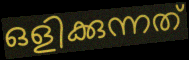
ഒളിക്കുന്നത്